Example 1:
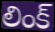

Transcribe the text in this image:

లింక్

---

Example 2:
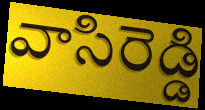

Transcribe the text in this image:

వాసిరెడ్డి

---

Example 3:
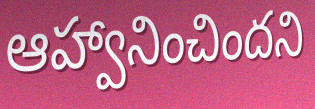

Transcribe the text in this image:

ఆహ్వానించిందని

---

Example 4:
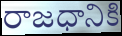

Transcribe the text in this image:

రాజధానికి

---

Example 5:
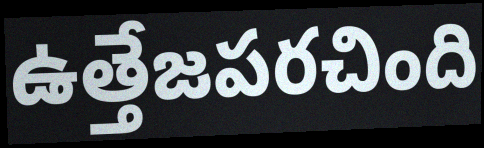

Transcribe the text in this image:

ఉత్తేజపరచింది